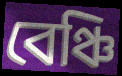
বেঞ্চি